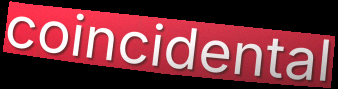
coincidental